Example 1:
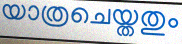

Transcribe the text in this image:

യാത്രചെയ്തതും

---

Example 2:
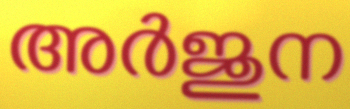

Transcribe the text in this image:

അർജുന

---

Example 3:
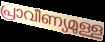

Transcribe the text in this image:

പ്രാവീണ്യമുള്ള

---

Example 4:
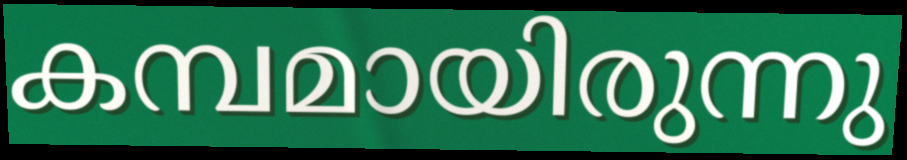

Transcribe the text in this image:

കമ്പമായിരുന്നു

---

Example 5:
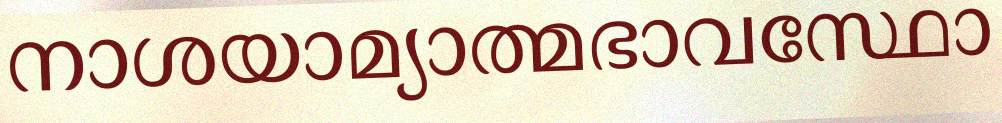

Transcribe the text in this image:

നാശയാമ്യാത്മഭാവസ്ഥോ